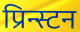
प्रिन्स्टन